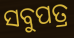
ସବୁପତ୍ର